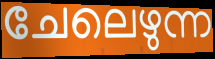
ചേലെഴുന്ന